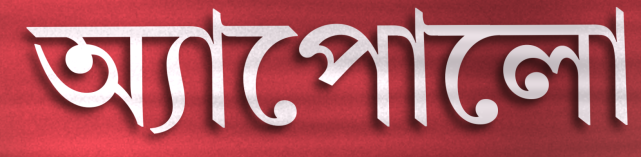
অ্যাপোলো